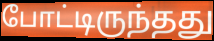
போட்டிருந்தது